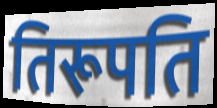
तिरूपति